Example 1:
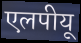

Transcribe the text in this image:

एलपीयू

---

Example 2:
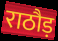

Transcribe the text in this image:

राठौड़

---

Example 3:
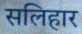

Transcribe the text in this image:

सलिहार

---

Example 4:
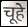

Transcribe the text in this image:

चूहे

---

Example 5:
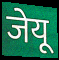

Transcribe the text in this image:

जेयू